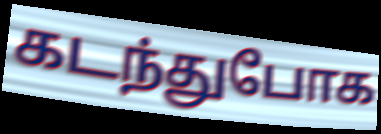
கடந்துபோக